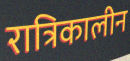
रात्रिकालीन